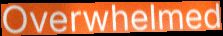
Overwhelmed